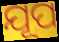
ଯୂପ